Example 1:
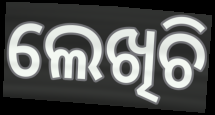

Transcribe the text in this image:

ଲେଖିଚି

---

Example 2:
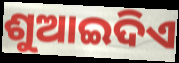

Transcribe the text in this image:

ଶୁଆଇଦିଏ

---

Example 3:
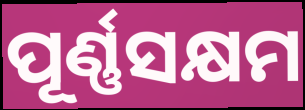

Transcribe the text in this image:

ପୂର୍ଣ୍ଣସକ୍ଷମ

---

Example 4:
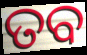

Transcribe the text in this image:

ତବ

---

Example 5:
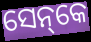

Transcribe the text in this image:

ସେନ୍‌କେ